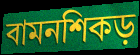
বামনশিকড়